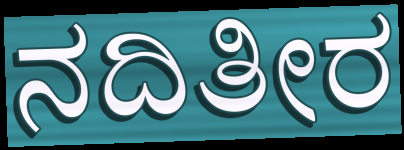
ನದಿತೀರ